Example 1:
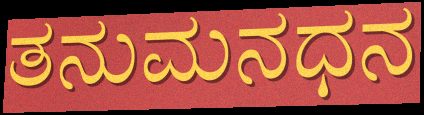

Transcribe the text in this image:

ತನುಮನಧನ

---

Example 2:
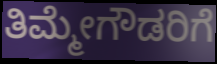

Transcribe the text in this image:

ತಿಮ್ಮೇಗೌಡರಿಗೆ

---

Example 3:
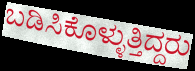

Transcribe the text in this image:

ಬಡಿಸಿಕೊಳ್ಳುತ್ತಿದ್ದರು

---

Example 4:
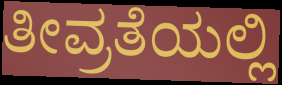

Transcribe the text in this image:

ತೀವ್ರತೆಯಲ್ಲಿ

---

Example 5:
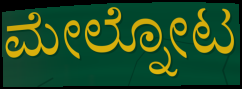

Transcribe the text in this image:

ಮೇಲ್ನೋಟ